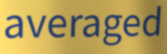
averaged